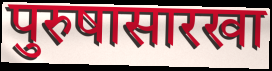
पुरुषासारखा